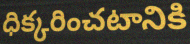
ధిక్కరించటానికి